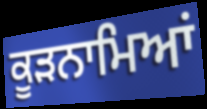
ਕੂੜਨਾਮਿਆਂ